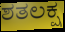
ಶತಲಕ್ಷ